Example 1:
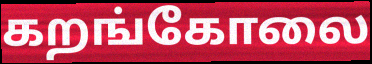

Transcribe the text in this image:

கறங்கோலை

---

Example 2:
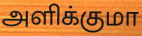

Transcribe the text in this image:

அளிக்குமா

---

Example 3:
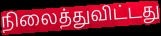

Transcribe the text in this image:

நிலைத்துவிட்டது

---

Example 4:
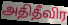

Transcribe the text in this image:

அதிதீவிர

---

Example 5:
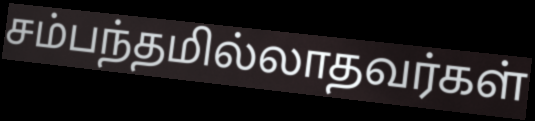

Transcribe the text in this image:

சம்பந்தமில்லாதவர்கள்